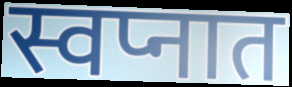
स्वप्नात